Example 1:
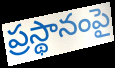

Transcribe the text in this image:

ప్రస్థానంపై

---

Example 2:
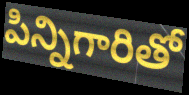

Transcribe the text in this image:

పిన్నిగారితో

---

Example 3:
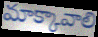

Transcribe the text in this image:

మాక్కావాలి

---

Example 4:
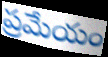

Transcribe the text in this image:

ప్రమేయం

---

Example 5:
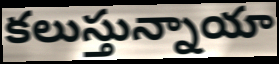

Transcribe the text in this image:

కలుస్తున్నాయా